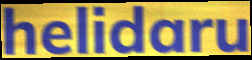
helidaru